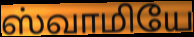
ஸ்வாமியே